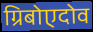
ग्रिबोएदोव